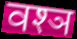
वश्ञ